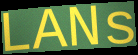
LANs